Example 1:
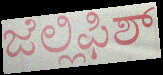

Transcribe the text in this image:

ಜೆಲ್ಲಿಫಿಶ್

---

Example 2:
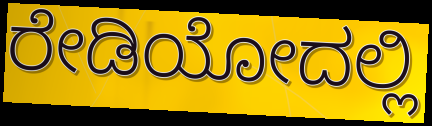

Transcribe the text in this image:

ರೇಡಿಯೋದಲ್ಲಿ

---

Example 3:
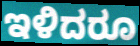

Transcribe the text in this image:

ಇಳಿದರೂ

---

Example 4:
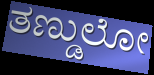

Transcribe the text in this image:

ತಣ್ಡುಲೋ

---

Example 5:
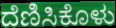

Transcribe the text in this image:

ದೆಣಿಸಿಕೊಳು